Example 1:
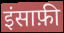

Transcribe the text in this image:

इंसाफ़ी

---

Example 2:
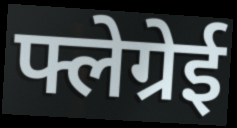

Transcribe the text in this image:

फ्लेग्रेई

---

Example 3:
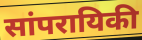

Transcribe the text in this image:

सांपरायिकी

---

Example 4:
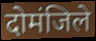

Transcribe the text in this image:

दोमंजिले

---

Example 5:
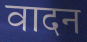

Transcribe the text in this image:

वादन